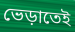
ভেড়াতেই